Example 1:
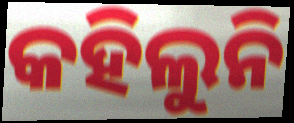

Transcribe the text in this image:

କହିଲୁନି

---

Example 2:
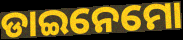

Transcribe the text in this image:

ଡାଇନେମୋ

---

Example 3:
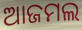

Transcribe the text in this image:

ଆଜମଲ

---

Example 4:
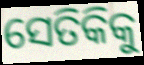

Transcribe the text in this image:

ସେତିକିକୁ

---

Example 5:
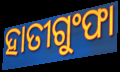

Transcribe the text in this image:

ହାତୀଗୁଂଫା